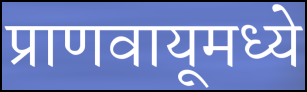
प्राणवायूमध्ये